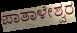
ಪಾತಾಳೇಶ್ವರ